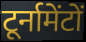
टूर्नामेंटों